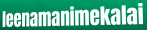
leenamanimekalai